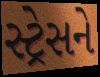
સ્ટ્રેસને